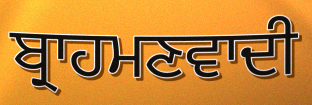
ਬ੍ਰਾਹਮਣਵਾਦੀ